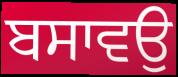
ਬਸਾਵਉ